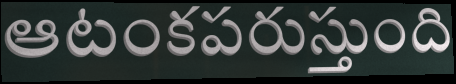
ఆటంకపరుస్తుంది